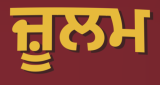
ਜ਼ੂਲਮ